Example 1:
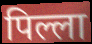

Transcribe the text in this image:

पिल्ला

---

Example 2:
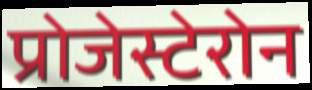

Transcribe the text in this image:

प्रोजेस्टेरोन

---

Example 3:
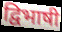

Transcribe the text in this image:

द्विभाषी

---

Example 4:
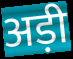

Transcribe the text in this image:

अड़ी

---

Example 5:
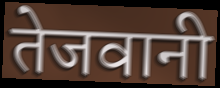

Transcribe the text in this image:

तेजवानी